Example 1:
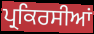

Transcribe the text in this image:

ਪ੍ਰਕਿਰਸੀਆਂ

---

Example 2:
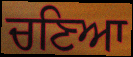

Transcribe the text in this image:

ਚਣਿਆ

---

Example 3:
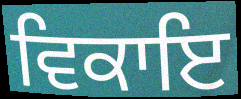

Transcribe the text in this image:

ਵਿਕਾਇ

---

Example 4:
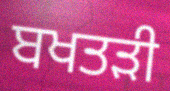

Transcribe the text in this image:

ਬਖਤੜੀ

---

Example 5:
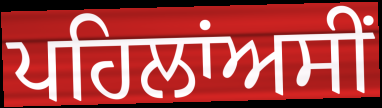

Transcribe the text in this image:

ਪਹਿਲਾਂਅਸੀਂ